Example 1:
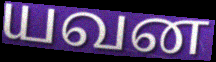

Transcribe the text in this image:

யவன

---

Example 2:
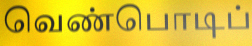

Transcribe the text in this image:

வெண்பொடிப்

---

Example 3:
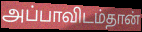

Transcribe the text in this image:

அப்பாவிடம்தான்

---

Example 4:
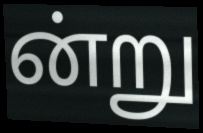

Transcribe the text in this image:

ன்று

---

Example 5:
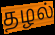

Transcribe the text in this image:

தழல்